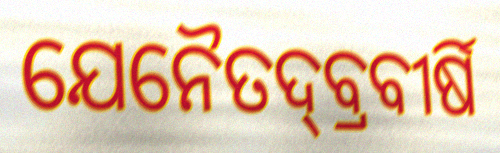
ଯେନୈତଦ୍‌ବ୍ରବୀର୍ଷି